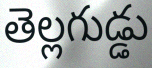
తెల్లగుడ్డు